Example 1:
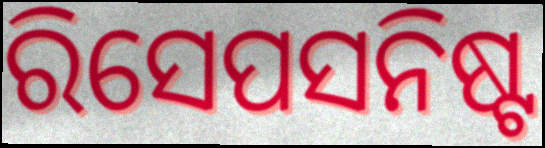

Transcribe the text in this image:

ରିସେପସନିଷ୍ଟ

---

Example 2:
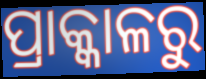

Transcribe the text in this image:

ପ୍ରାକ୍କାଳରୁ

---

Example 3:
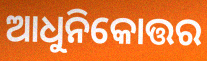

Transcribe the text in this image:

ଆଧୁନିକୋତ୍ତର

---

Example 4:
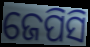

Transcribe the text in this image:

ଜେପିସି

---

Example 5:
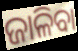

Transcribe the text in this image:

ଜାଳିବା